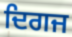
ਦਿਗਜ